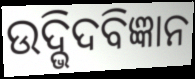
ଉଦ୍ଭିଦବିଜ୍ଞାନ